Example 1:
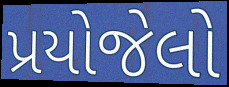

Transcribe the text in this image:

પ્રયોજેલો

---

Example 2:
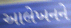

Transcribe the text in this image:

આલેખનને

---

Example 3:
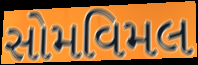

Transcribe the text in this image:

સોમવિમલ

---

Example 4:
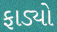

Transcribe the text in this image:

ફાડ્યો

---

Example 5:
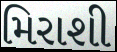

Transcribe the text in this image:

મિરાશી